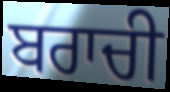
ਬਰਾਚੀ